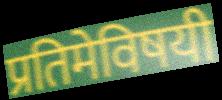
प्रतिमेविषयी